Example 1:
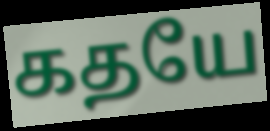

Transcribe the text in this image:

கதயே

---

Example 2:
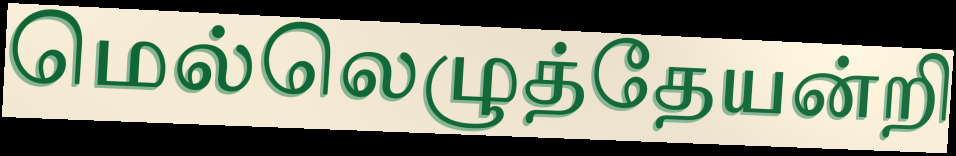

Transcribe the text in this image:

மெல்லெழுத்தேயன்றி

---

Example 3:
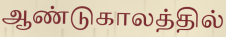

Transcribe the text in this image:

ஆண்டுகாலத்தில்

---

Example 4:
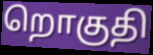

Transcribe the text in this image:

றொகுதி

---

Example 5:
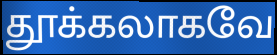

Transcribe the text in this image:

தூக்கலாகவே